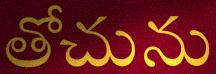
తోచును